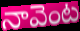
నావెంట